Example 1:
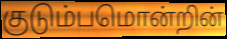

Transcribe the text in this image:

குடும்பமொன்றின்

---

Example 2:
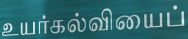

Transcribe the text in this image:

உயர்கல்வியைப்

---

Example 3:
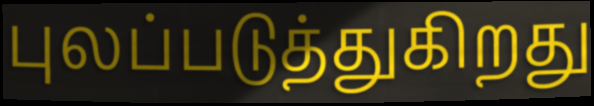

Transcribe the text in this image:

புலப்படுத்துகிறது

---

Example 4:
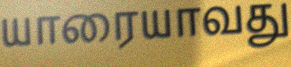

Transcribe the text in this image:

யாரையாவது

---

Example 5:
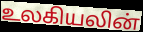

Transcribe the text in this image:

உலகியலின்